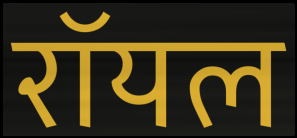
रॉयल